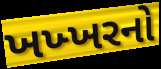
ખખ્ખરનો